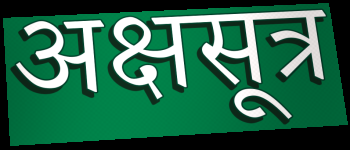
अक्षसूत्र